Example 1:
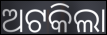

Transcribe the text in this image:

ଅଟକିଲା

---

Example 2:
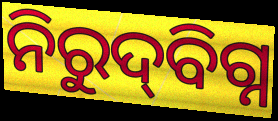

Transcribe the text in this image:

ନିରୁଦ୍‍ବିଗ୍ନ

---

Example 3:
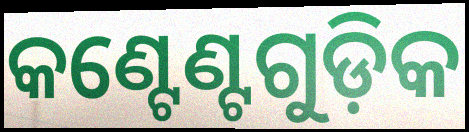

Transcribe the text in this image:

କଣ୍ଟେଣ୍ଟଗୁଡ଼ିକ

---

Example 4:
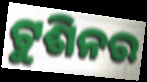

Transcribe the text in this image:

ଟୁଶିନର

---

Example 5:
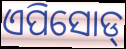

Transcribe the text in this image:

ଏପିସୋଡ୍